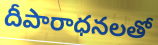
దీపారాధనలతో